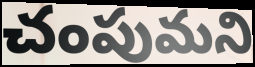
చంపుమని